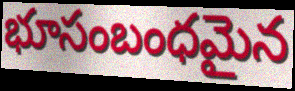
భూసంబంధమైన